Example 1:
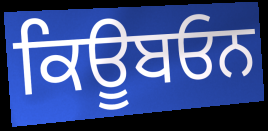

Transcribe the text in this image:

ਕਿਊਬਓਨ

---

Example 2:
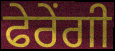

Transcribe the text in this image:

ਫੇਰੇਂਗੀ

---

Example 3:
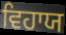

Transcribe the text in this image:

ਵਿਹਾਯ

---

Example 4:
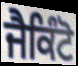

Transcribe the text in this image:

ਜੈਕਿੰਟੋ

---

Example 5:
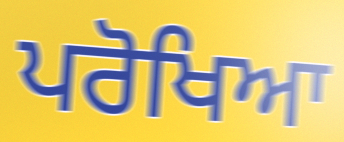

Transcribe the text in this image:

ਪਰੋਖਿਆ